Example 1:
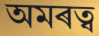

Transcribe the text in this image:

অমৰত্ব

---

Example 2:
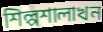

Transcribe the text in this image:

শিল্পশালাখন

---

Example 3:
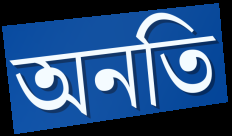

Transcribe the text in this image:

অনতি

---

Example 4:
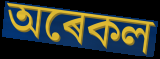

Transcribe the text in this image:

অৰেকল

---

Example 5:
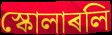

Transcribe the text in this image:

স্কোলাৰলি